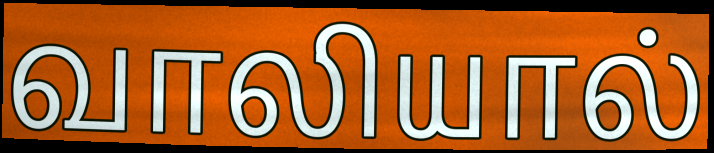
வாலியால்